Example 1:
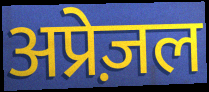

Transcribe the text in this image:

अप्रेज़ल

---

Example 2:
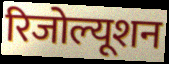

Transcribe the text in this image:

रिजोल्यूशन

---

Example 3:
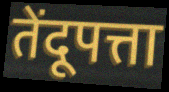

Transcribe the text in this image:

तेंदूपत्ता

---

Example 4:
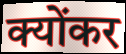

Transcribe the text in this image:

क्‍योंकर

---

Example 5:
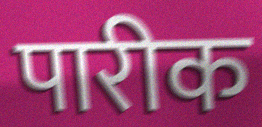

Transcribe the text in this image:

पारीक